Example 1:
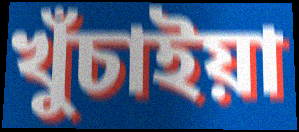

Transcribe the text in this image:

খুঁচাইয়া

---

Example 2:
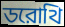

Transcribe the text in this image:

ডরোথি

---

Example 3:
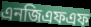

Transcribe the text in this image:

এনজিএফএফ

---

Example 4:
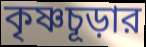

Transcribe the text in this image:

কৃষ্ণচূড়ার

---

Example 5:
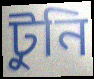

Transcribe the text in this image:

টুনি